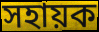
সহায়ক